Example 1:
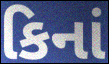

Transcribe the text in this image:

કિનાં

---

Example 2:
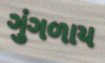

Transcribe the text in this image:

ગુંગળાય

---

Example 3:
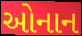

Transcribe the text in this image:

ઓનાન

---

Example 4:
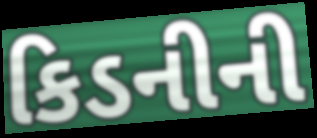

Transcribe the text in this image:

કિડનીની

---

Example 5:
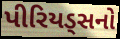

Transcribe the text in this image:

પીરિયડ્સનો